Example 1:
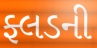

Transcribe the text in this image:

ફ્લડની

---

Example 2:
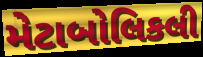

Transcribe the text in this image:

મેટાબોલિકલી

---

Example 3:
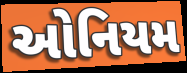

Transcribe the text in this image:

ઓનિયમ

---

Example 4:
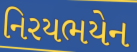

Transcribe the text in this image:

નિરયભયેન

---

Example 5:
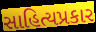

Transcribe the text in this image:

સાહિત્યપ્રકાર